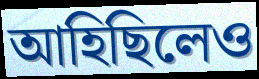
আহিছিলেও